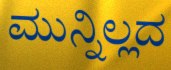
ಮುನ್ನಿಲ್ಲದ